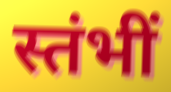
स्तंभीं